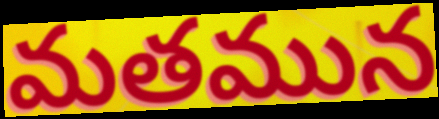
మతమున